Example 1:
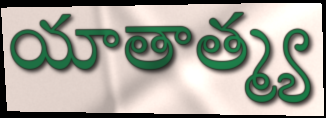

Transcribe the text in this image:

యాతాత్మ్య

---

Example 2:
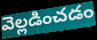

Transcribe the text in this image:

వెల్లడించడం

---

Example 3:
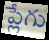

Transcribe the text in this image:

ప్లేగు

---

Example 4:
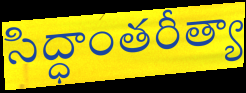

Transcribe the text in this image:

సిద్ధాంతరీత్యా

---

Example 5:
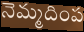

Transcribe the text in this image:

నెమ్మదింప